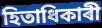
হিতাধিকাৰী